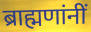
ब्राह्मणांनीं